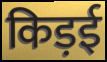
किड़ई